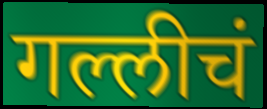
गल्लीचं